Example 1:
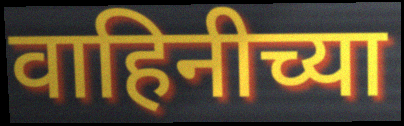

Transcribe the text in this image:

वाहिनीच्या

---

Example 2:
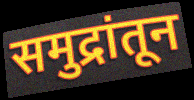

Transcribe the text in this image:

समुद्रांतून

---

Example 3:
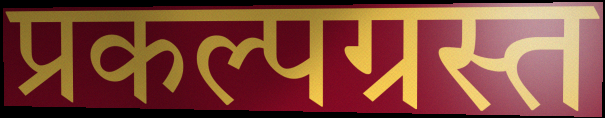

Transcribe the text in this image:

प्रकल्पग्रस्त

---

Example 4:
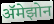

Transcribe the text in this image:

ॲमेझोन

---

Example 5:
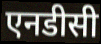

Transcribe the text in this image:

एनडीसी